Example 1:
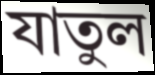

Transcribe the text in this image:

যাতুল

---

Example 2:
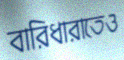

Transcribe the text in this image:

বারিধারাতেও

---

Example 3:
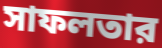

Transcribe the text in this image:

সাফলতার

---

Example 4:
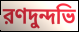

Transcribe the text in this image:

রণদুন্দভি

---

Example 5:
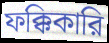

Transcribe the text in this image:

ফক্কিকারি